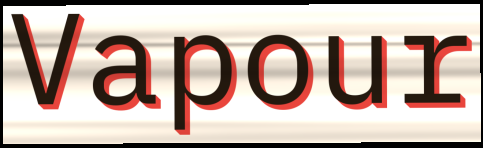
Vapour